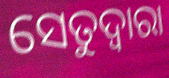
ସେତୁଦ୍ୱାରା